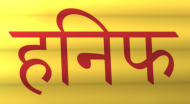
हनिफ